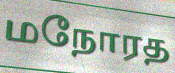
மநோரத